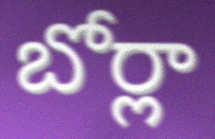
బోర్లా